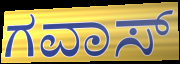
ಗವಾಸ್